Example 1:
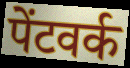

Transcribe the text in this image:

पेंटवर्क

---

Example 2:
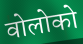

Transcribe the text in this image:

वोलोको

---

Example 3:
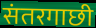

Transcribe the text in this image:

संतरगाछी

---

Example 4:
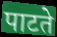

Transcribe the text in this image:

पाटते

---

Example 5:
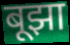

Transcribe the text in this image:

बूझा